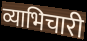
व्याभिचारी